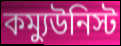
কম্যুউনিস্ট